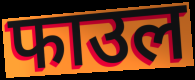
फाउल